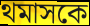
থমাসকে